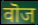
वॊज